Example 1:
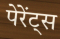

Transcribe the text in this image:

पेरेंट्स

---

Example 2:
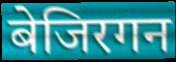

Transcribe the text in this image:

बेजिरगन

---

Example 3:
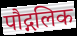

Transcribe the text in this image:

पौद्गलिक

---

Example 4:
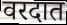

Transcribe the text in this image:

वरदात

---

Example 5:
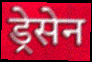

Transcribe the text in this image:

ड्रेसेन